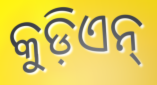
କୁଡ଼ିଏନ୍